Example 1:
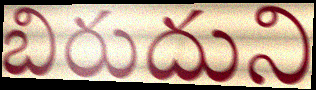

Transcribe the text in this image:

బిరుదుని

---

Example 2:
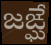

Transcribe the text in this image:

జఙ్ఘే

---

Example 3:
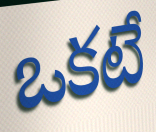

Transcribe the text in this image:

ఒకటే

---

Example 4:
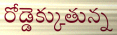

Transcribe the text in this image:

రోడ్డెక్కుతున్న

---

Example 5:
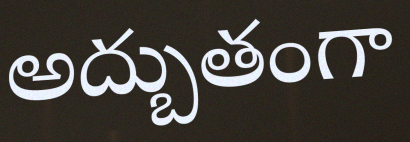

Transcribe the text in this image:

అద్బుతంగా